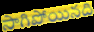
సాగిపోయినది